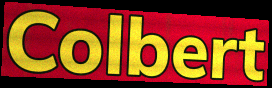
Colbert